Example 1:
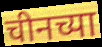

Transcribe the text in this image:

चीनच्या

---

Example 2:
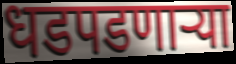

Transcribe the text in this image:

धडपडणाऱ्या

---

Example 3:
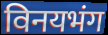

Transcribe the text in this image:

विनयभंग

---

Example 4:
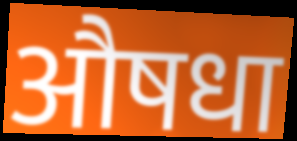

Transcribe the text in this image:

औषधा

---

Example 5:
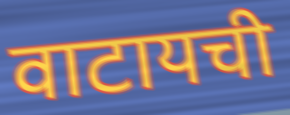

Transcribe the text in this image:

वाटायची